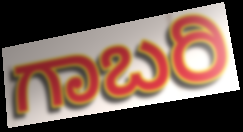
ಗಾಬರಿ